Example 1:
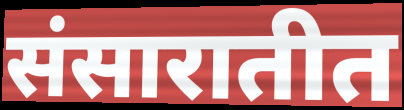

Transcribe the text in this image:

संसारातीत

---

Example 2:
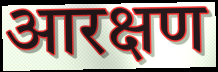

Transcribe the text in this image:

आरक्षण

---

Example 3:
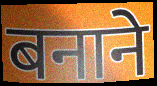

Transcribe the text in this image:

बनाने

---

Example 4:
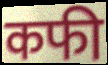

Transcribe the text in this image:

कफी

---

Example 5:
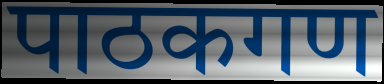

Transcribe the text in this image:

पाठकगण